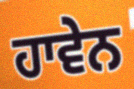
ਹਾਵੇਨ